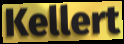
Kellert